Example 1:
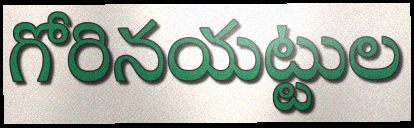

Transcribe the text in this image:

గోరినయట్టుల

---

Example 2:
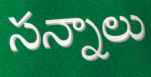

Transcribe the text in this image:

సన్నాలు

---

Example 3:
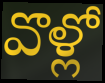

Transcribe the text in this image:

వొళ్లో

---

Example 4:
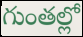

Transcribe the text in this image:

గుంతల్లో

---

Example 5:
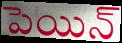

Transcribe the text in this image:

పెయిన్